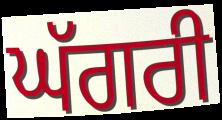
ਘੱਗਰੀ